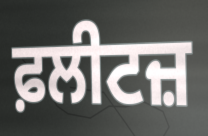
ਫ਼ਲੀਟਜ਼